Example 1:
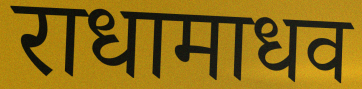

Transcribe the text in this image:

राधामाधव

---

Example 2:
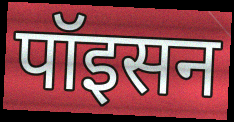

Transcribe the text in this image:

पॉइसन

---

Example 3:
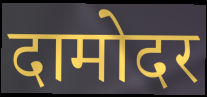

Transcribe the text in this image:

दामोदर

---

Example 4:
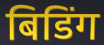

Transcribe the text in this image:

बिडिंग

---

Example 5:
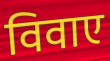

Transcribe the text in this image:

विवाए